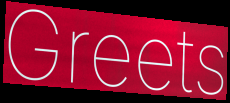
Greets